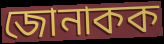
জোনাকক